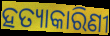
ହତ୍ୟାକାରିଣୀ